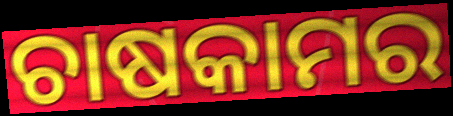
ଚାଷକାମର